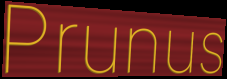
Prunus